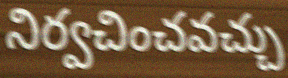
నిర్వచించవచ్చు